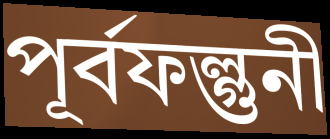
পূর্বফল্গুনী